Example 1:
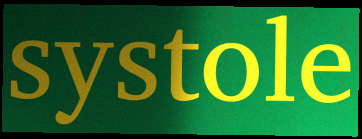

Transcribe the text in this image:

systole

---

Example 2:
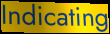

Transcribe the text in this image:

Indicating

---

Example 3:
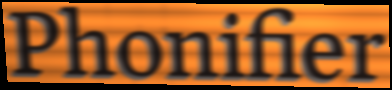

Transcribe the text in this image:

Phonifier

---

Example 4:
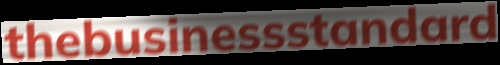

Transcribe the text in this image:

thebusinessstandard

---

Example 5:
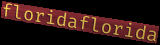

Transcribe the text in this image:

floridaflorida